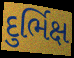
દુર્ભિક્ષ